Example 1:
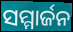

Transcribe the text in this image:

ସମ୍ମାର୍ଜନ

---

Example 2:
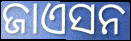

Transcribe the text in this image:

ଜାଏସନ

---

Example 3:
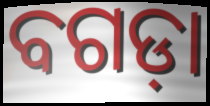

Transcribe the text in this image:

ବଗଡ଼ା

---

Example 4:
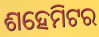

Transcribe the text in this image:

ଶହେମିଟର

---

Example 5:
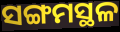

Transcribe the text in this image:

ସଙ୍ଗମସ୍ଥଳ